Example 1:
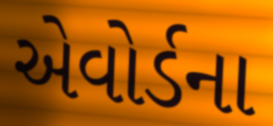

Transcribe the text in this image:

એવોર્ડના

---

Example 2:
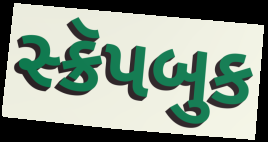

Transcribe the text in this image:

સ્ક્રૅપબુક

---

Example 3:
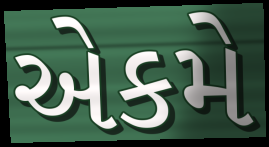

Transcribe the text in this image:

એકમે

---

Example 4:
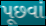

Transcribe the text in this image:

પૂછવાં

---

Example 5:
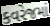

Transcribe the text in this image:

કવરેજમાં